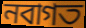
নবাগত